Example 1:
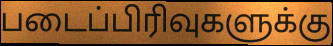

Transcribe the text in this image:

படைப்பிரிவுகளுக்கு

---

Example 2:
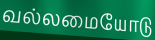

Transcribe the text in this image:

வல்லமையோடு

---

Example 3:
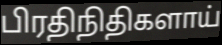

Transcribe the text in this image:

பிரதிநிதிகளாய்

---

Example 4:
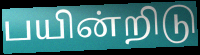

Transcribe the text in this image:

பயின்றிடு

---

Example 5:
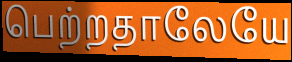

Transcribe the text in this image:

பெற்றதாலேயே